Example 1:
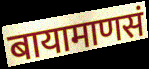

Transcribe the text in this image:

बायामाणसं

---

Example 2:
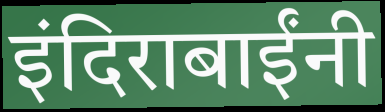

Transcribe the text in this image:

इंदिराबाईंनी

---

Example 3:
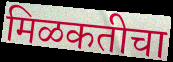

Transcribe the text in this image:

मिळकतीचा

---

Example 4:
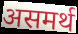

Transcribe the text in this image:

असमर्थ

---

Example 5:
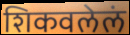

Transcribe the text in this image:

शिकवलेलं